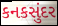
કનકસુંદર